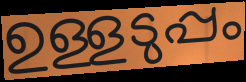
ഉള്ളടുപ്പം